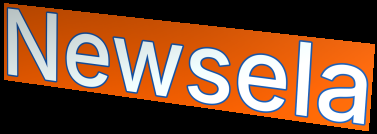
Newsela